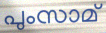
പുംസാമ്